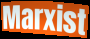
Marxist